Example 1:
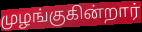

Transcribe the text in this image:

முழங்குகின்றார்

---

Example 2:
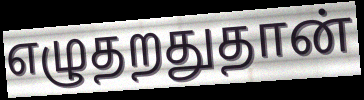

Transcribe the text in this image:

எழுதறதுதான்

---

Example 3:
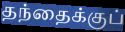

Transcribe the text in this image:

தந்தைக்குப்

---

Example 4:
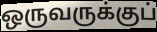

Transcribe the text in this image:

ஒருவருக்குப்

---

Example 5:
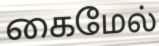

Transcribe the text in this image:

கைமேல்